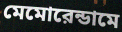
মেমোরেন্ডামে